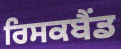
ਰਿਸਕਬੈਂਡ